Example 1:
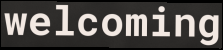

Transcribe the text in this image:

welcoming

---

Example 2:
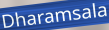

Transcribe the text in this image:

Dharamsala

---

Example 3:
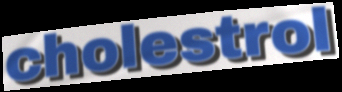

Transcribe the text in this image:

cholestrol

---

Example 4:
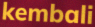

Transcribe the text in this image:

kembali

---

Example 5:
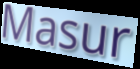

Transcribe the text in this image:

Masur